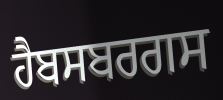
ਹੈਬਸਬਰਗਸ